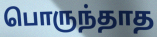
பொருந்தாத